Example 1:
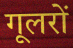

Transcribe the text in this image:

गूलरों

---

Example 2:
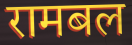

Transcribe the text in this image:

रामबल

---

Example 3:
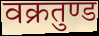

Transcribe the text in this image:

वक्रतुण्ड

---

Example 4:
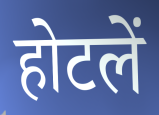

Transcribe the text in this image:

होटलें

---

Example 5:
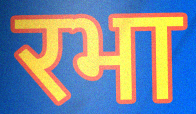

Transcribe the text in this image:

रभा